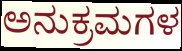
ಅನುಕ್ರಮಗಳ